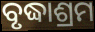
ବୃଦ୍ଧାଶ୍ରମ